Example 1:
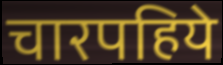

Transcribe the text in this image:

चारपहिये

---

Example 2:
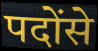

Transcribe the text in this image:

पदोंसे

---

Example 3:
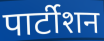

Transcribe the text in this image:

पार्टीशन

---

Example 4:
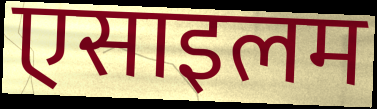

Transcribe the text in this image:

एसाइलम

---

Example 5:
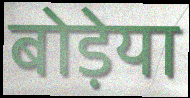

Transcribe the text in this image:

बोड़ेया